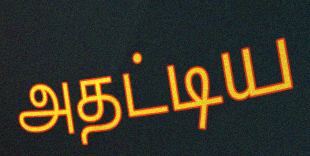
அதட்டிய